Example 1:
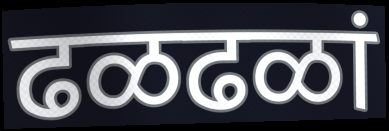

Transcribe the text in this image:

ढळढळां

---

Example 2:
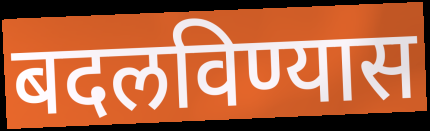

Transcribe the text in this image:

बदलविण्यास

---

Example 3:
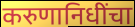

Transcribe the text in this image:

करुणानिधींचा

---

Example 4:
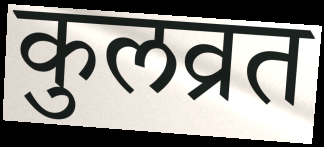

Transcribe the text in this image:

कुलव्रत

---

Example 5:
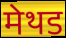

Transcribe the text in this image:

मेथड